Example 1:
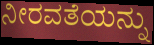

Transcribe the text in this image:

ನೀರವತೆಯನ್ನು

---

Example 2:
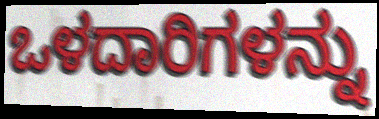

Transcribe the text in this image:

ಒಳದಾರಿಗಳನ್ನು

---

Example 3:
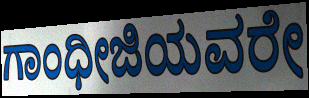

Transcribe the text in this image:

ಗಾಂಧೀಜಿಯವರೇ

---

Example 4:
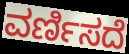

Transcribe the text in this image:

ವರ್ಣಿಸದೆ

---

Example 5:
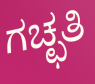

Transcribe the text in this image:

ಗಚ್ಛತಿ